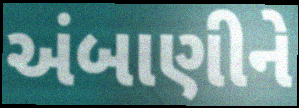
અંબાણીને